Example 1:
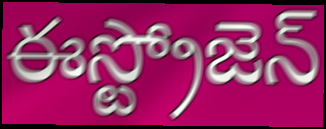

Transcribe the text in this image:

ఈస్ట్రోజెన్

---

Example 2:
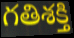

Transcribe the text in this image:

గతిశక్తి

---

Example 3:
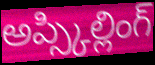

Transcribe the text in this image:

అప్స్కిల్లింగ్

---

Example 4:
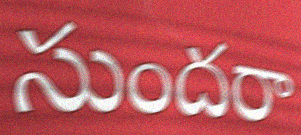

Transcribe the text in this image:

సుందరా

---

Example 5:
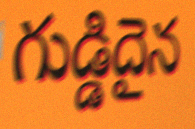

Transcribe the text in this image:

గుడ్డిదైన